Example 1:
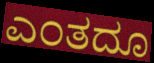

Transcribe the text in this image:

ಎಂತದೂ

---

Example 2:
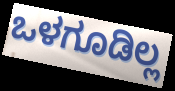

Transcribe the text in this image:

ಒಳಗೂಡಿಲ್ಲ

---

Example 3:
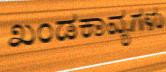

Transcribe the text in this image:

ಖಂಡಕಾವ್ಯಗಳು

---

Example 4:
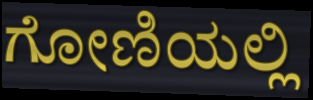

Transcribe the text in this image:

ಗೋಣಿಯಲ್ಲಿ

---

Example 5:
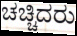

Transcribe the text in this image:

ಚಚ್ಚಿದರು